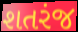
શતરંજ